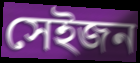
সেইজন